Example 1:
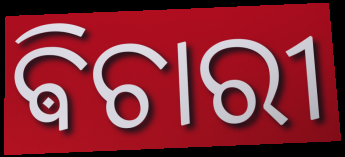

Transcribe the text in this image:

ଵିଚାରୀ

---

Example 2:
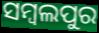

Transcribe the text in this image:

ସମ୍ବଲପୁର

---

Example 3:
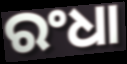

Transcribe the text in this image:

ରଂଧା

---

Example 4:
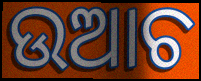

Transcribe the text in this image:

ଉଆଚ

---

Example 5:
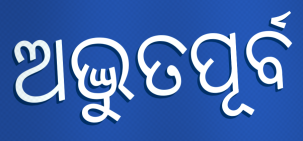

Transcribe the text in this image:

ଅଦ୍ଭୁତପୂର୍ବ